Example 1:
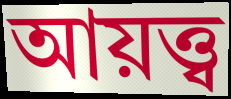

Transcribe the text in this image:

আয়ত্ত্ব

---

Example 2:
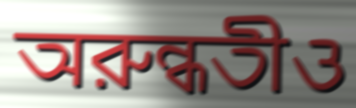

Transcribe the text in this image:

অরুন্ধতীও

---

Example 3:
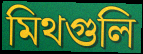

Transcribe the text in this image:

মিথগুলি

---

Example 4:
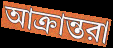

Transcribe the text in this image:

আক্রান্তরা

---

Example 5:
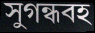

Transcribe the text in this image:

সুগন্ধবহ